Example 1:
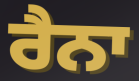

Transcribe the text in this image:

ਰੈਨਾ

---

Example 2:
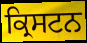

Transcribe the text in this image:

ਕ੍ਰਿਸਟਨ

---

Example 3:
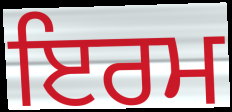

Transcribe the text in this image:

ਇਰਮ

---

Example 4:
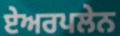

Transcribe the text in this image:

ਏਅਰਪਲੇਨ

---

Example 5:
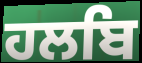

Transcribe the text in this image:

ਹਲਬਿ